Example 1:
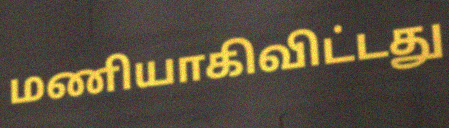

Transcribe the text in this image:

மணியாகிவிட்டது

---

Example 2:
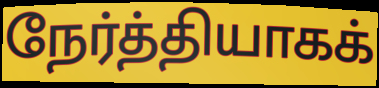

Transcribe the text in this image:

நேர்த்தியாகக்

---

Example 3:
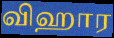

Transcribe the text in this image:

விஹார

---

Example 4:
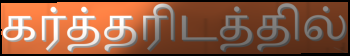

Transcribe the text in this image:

கர்த்தரிடத்தில்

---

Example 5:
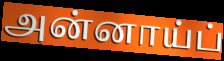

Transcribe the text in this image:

அன்னாய்ப்